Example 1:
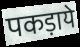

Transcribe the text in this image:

पकड़ाये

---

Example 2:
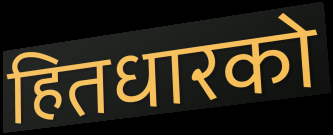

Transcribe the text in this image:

हितधारको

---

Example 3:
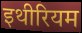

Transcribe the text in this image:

इथीरियम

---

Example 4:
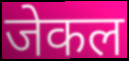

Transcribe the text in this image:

जेकल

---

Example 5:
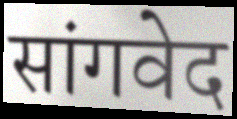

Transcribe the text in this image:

सांगवेद